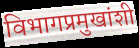
विभागप्रमुखांशी